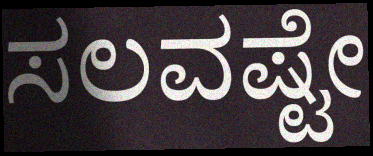
ಸಲವಷ್ಟೇ